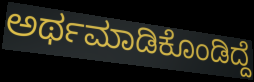
ಅರ್ಥಮಾಡಿಕೊಂಡಿದ್ದೆ